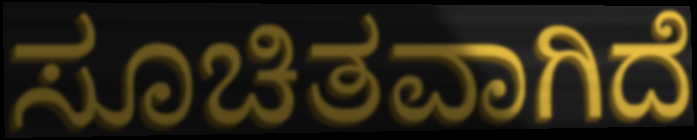
ಸೂಚಿತವಾಗಿದೆ